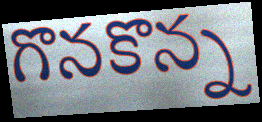
గొనకొన్న